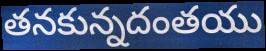
తనకున్నదంతయు